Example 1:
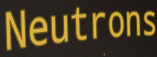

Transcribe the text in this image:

Neutrons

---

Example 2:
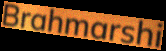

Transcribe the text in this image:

Brahmarshi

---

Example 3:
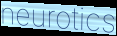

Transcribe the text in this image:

neurotics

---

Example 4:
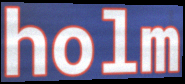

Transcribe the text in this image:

holm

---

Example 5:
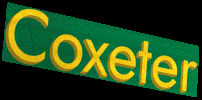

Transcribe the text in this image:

Coxeter